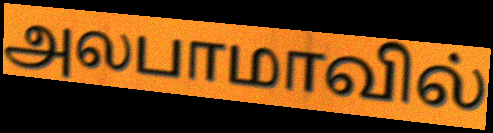
அலபாமாவில்